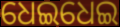
ଧେଇଧେଇ